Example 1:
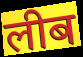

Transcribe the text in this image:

लीब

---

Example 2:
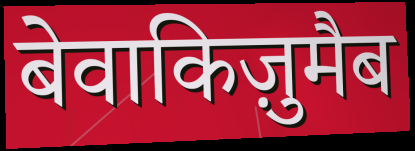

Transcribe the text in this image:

बेवाकिज़ुमैब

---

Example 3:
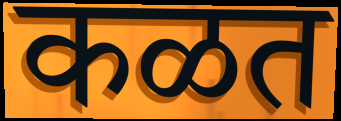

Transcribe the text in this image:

कळत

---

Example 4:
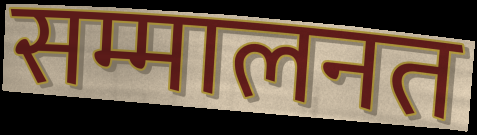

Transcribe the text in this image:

सम्मालनत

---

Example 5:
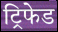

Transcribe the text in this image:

ट्रिफेड